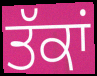
ਤੱਕਾਂ